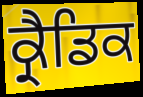
ਕ੍ਰੈਡਿਕ